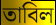
তাবিল